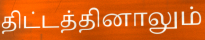
திட்டத்தினாலும்